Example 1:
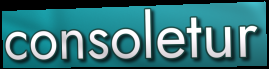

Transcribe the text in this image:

consoletur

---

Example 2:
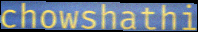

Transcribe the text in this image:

chowshathi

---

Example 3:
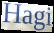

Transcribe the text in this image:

Hagi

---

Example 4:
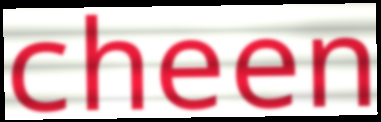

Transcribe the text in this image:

cheen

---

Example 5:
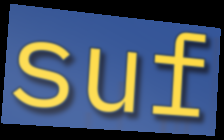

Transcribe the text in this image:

suf